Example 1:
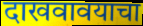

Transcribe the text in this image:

दाखवावयाचा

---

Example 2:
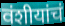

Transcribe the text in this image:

वंशीयांचं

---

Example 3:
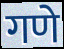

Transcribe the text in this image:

गणे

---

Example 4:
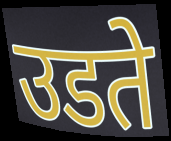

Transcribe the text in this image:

उडते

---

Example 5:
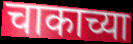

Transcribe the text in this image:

चाकाच्या